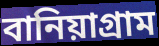
বানিয়াগ্রাম